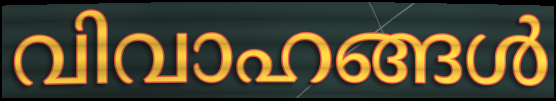
വിവാഹങ്ങൾ